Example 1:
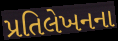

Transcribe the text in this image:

પ્રતિલેખનના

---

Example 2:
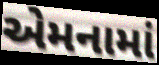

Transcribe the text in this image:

એમનામાં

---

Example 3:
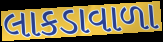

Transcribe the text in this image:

લાકડાવાળા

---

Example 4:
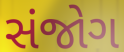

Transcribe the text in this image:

સંજોગ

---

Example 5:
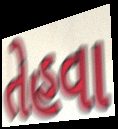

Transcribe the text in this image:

તેહવા